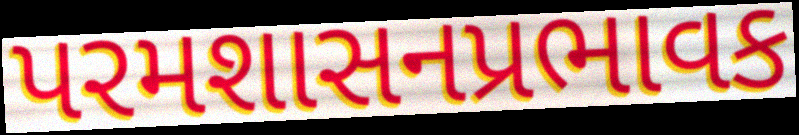
પરમશાસનપ્રભાવક